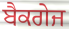
ਬੈਕਗੇਜ